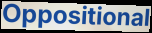
Oppositional